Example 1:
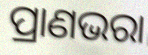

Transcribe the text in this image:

ପ୍ରାଣଭରା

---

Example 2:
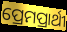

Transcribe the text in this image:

ପ୍ରେମପ୍ରାର୍ଥୀ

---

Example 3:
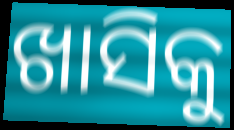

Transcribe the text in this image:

ଖାସିକୁ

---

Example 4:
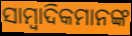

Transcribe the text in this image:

ସାମ୍ବାଦିକମାନଙ୍କ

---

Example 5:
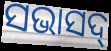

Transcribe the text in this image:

ସଭାସଦ୍